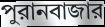
পুরানবাজার